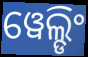
ୱେଲ୍ଡିଂ